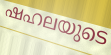
ഷഹലയുടെ